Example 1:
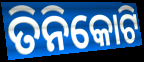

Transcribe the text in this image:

ତିନିକୋଟି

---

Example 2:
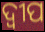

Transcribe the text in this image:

ଦ୍ବୀପ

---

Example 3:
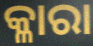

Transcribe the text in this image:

କ୍ଳାରା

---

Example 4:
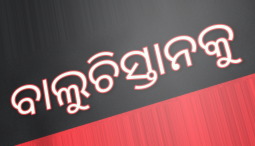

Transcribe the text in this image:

ବାଲୁଚିସ୍ତାନକୁ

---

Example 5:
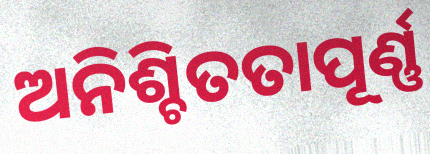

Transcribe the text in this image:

ଅନିଶ୍ଚିତତାପୂର୍ଣ୍ଣ